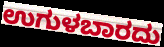
ಉಗುಳಬಾರದು